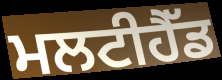
ਮਲਟੀਹੈੱਡ